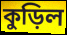
কুড়িল